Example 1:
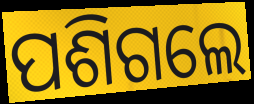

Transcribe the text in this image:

ପଶିଗଲେ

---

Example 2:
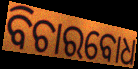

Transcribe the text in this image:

ବିଚାରବୋଧ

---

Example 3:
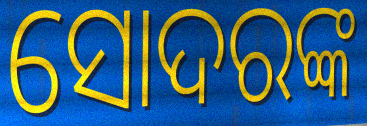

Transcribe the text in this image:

ସୋଦରଙ୍କ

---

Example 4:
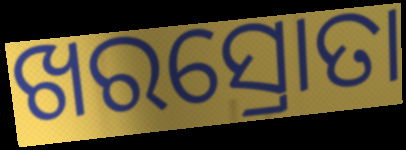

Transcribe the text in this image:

ଖରସ୍ରୋତା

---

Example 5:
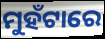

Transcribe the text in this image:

ମୁହଁଟାରେ